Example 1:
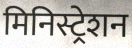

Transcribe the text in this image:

मिनिस्ट्रेशन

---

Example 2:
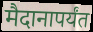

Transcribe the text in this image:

मैदानापर्यंत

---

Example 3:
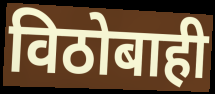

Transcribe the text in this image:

विठोबाही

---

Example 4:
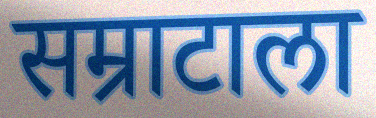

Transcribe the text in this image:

सम्राटाला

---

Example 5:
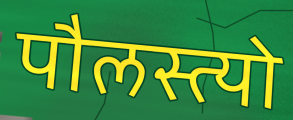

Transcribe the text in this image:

पौलस्त्यो